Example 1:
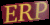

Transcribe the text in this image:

ERP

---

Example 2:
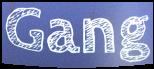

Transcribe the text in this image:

Gang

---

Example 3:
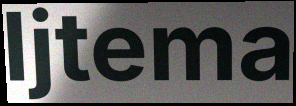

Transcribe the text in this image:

Ijtema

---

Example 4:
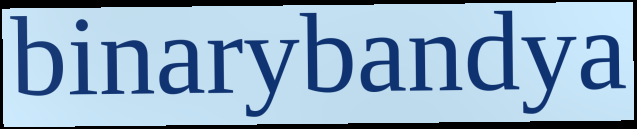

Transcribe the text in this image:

binarybandya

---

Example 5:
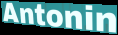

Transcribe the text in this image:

Antonin